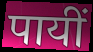
पायीं